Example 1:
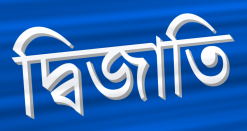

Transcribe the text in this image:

দ্বিজাতি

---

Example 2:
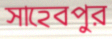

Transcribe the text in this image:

সাহেবপুর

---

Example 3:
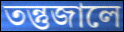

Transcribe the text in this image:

তন্তুজালে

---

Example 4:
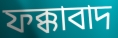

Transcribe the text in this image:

ফক্কাবাদ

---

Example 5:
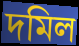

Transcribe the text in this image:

দমিল